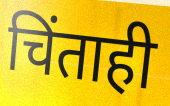
चिंताही